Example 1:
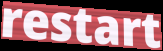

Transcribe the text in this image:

restart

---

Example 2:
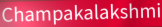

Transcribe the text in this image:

Champakalakshmi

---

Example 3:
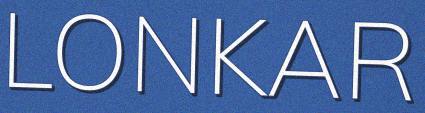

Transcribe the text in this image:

LONKAR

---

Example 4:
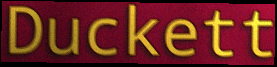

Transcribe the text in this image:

Duckett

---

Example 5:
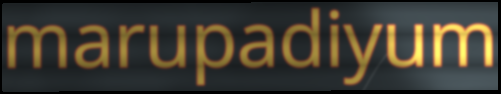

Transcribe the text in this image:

marupadiyum